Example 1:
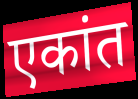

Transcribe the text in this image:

एकांत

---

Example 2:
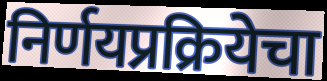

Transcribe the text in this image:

निर्णयप्रक्रियेचा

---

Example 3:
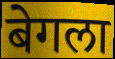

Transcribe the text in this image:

बेगला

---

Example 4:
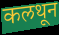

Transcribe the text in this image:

कलथून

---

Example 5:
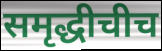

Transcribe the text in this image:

समृद्धीचीच